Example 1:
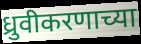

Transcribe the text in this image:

ध्रुवीकरणाच्या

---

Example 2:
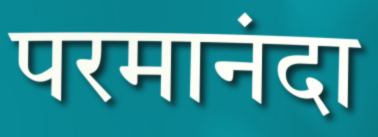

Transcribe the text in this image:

परमानंदा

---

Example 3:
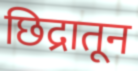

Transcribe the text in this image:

छिद्रातून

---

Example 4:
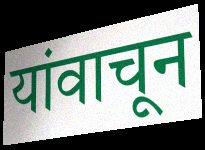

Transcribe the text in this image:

यांवाचून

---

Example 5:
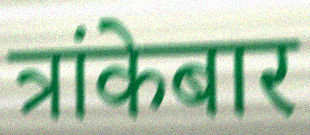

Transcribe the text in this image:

त्रांकेबार